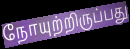
நோயுற்றிருப்பது